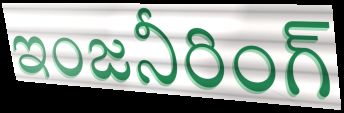
ఇంజనీరింగ్